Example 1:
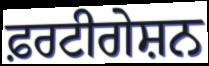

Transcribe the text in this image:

ਫ਼ਰਟੀਗੇਸ਼ਨ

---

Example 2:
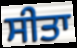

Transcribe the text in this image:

ਸੀਤਾ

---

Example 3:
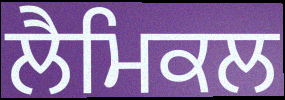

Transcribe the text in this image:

ਲੈਮਿਕਲ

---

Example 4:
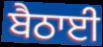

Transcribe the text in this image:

ਬੈਠਾਈ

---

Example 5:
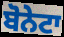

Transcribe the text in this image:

ਬੋਨੇਟਾ